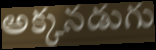
అక్కనడుగు